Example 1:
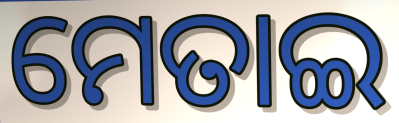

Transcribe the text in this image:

ମେତାଇ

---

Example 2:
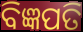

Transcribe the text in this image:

ବିଜ୍ଞପତି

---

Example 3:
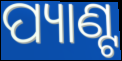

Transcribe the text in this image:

ପ୍ୟାଣ୍ଟ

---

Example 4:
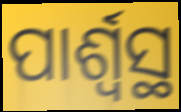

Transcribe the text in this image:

ପାର୍ଶ୍ବସ୍ଥ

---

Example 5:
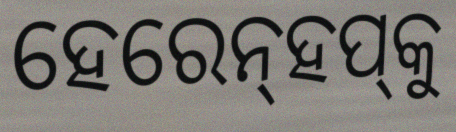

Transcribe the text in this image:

ହେରେନ୍‌ହପ୍‌କୁ